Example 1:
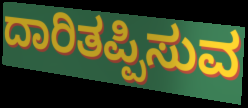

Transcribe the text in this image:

ದಾರಿತಪ್ಪಿಸುವ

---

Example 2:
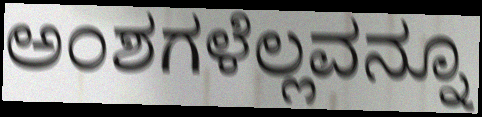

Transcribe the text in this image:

ಅಂಶಗಳೆಲ್ಲವನ್ನೂ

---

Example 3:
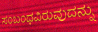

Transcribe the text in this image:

ಸಂಬಂಧವಿರುವುದನ್ನು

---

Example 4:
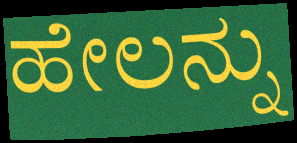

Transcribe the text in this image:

ಹೇಲನ್ನು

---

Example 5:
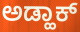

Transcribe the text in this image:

ಅಡ್ಹಾಕ್